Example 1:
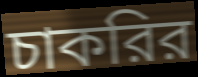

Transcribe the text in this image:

চাকরির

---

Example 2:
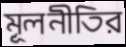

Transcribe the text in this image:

মূলনীতির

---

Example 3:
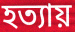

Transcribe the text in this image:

হত্যায়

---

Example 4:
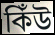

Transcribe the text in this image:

কিঁউ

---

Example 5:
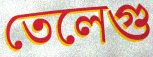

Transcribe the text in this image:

তেলেগু